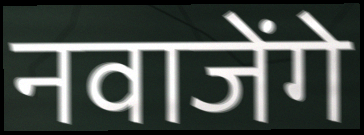
नवाजेंगे